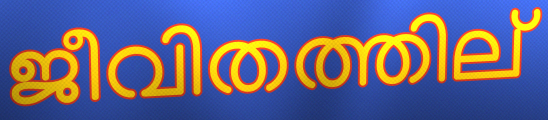
ജീവിതത്തില്